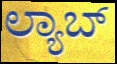
ಲ್ಯಾಬ್